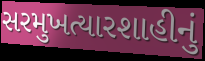
સરમુખત્યારશાહીનું